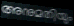
അനുമതിയും